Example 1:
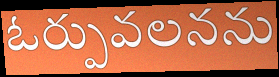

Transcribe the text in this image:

ఓర్పువలనను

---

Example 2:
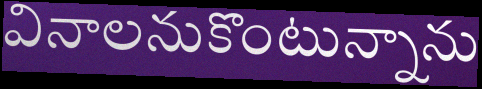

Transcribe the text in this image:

వినాలనుకొంటున్నాను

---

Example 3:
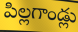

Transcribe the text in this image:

పిల్లగాండ్లు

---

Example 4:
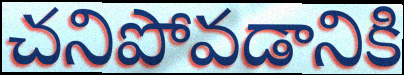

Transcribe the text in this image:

చనిపోవడానికి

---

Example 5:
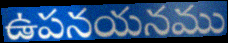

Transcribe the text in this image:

ఉపనయనము